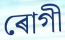
ৰোগী